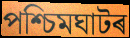
পশ্চিমঘাটৰ